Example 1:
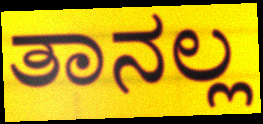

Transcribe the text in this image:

ತಾನಲ್ಲ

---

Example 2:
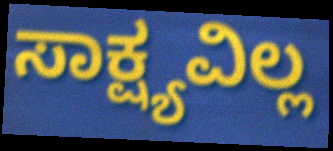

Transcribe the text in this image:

ಸಾಕ್ಷ್ಯವಿಲ್ಲ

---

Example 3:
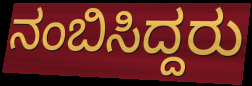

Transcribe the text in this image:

ನಂಬಿಸಿದ್ದರು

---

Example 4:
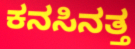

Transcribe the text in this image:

ಕನಸಿನತ್ತ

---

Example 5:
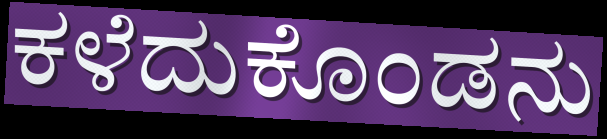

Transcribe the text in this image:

ಕಳೆದುಕೊಂಡನು